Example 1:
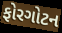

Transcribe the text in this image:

ફોરગોટન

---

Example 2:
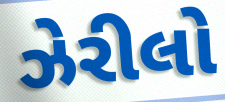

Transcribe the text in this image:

ઝેરીલો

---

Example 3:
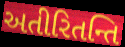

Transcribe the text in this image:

અતીરિતન્તિ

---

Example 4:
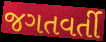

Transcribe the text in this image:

જગતવર્તી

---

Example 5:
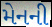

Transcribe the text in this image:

મેનની